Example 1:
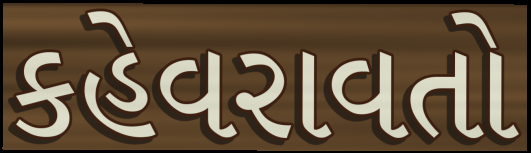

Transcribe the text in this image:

કહેવરાવતો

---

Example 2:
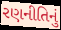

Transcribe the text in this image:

રણનીતિનું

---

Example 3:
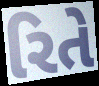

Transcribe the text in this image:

રિતે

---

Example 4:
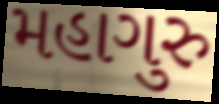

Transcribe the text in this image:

મહાગુરુ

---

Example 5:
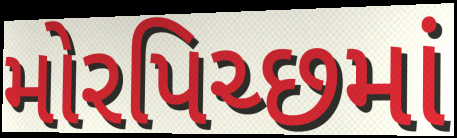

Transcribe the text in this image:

મોરપિચ્છમાં